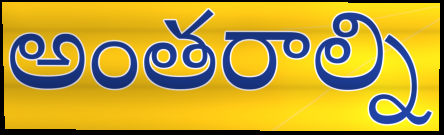
అంతరాల్ని